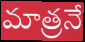
మాత్రనే